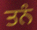
ਤਨੰ